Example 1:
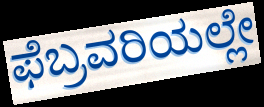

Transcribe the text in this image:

ಫೆಬ್ರವರಿಯಲ್ಲೇ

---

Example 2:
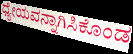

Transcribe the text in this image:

ಧ್ಯೇಯವನ್ನಾಗಿಸಿಕೊಂಡ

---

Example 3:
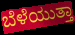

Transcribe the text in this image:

ಬೆಳೆಯುತ್ತಾ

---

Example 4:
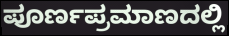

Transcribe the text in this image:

ಪೂರ್ಣಪ್ರಮಾಣದಲ್ಲಿ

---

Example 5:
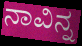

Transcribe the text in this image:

ನಾವಿನ್ನ